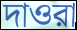
দাওরা